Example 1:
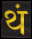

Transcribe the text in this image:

थं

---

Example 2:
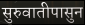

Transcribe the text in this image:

सुरुवातीपासुन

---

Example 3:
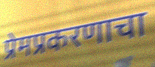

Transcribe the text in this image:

प्रेमप्रकरणाचा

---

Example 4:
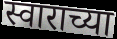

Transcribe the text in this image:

स्वाराच्या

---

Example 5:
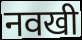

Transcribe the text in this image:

नवखी